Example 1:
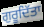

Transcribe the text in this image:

ਗੁਰੂਦਿੱਤਾ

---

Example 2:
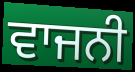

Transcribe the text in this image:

ਵਾਜਨੀ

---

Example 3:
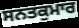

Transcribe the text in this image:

ਸਨਤਕੁਮਾਰ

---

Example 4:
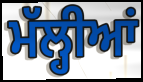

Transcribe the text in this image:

ਮੱਲ੍ਹੀਆਂ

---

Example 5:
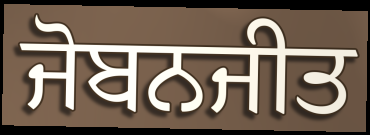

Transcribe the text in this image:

ਜੋਬਨਜੀਤ